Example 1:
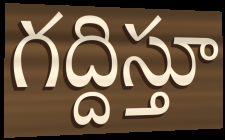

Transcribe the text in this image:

గద్దిస్తూ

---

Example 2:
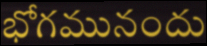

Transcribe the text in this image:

భోగమునందు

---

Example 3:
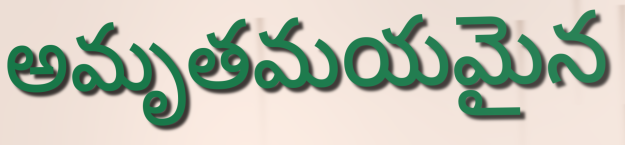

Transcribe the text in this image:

అమృతమయమైన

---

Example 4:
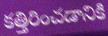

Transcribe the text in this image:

కత్తిరించడానికి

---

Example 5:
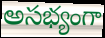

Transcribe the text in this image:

అసభ్యంగా